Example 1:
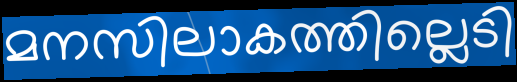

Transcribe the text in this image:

മനസിലാകത്തില്ലെടി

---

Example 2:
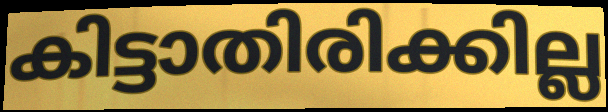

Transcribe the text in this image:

കിട്ടാതിരിക്കില്ല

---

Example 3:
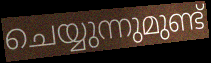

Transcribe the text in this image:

ചെയ്യുന്നുമുണ്ട്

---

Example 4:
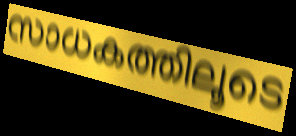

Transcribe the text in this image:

സാധകത്തിലൂടെ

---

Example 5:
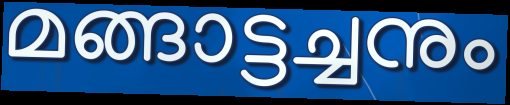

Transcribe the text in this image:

മങ്ങാട്ടച്ചനും